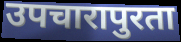
उपचारापुरता